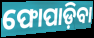
ଫୋପାଡ଼ିବା